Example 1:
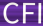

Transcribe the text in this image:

CFI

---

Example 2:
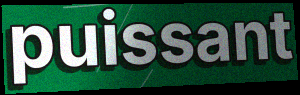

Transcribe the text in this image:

puissant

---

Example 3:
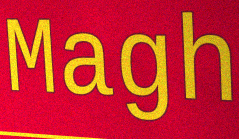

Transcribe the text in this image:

Magh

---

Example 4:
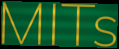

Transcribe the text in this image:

MITs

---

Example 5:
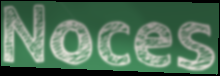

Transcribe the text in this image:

Noces